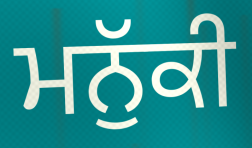
ਮਨੁੱਕੀ